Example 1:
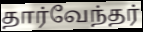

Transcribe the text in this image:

தார்வேந்தர்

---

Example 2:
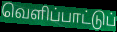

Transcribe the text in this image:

வெளிப்பாட்டுப்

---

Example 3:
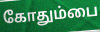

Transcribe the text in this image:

கோதும்பை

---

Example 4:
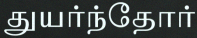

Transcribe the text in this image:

துயர்ந்தோர்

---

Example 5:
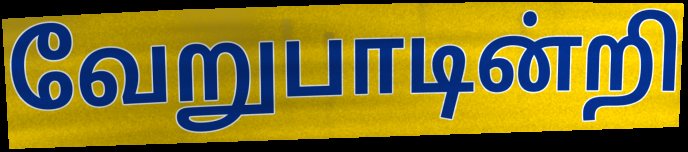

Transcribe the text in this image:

வேறுபாடின்றி